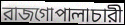
রাজগোপালাচারী